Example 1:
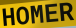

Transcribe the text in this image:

HOMER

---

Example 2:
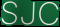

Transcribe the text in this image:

SJC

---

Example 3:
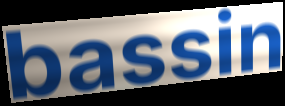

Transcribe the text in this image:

bassin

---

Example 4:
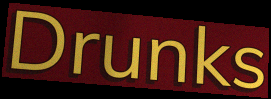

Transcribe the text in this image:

Drunks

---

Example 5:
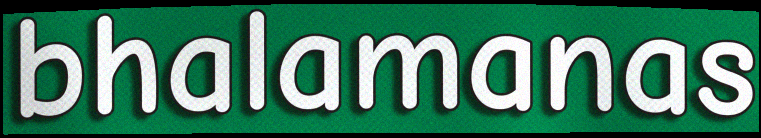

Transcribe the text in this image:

bhalamanas